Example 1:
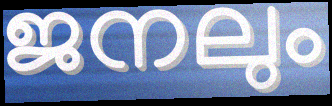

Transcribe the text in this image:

ജനലും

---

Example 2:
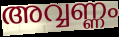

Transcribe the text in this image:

അവ്വണ്ണം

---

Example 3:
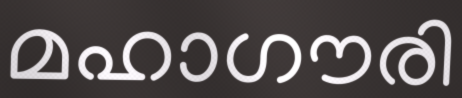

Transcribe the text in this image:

മഹാഗൗരി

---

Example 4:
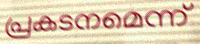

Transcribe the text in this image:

പ്രകടനമെന്ന്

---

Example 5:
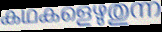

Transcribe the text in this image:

കഥകളെഴുതുന്ന